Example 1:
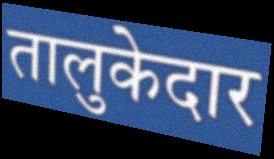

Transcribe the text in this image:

तालुकेदार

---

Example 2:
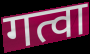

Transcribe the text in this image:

गत्वा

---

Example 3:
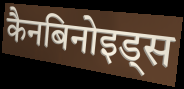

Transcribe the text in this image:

कैनबिनोइड्स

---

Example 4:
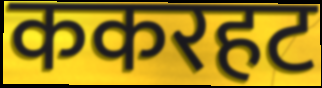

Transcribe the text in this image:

ककरहट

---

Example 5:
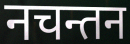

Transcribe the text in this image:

नचन्तन